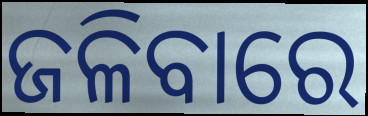
ଜଳିବାରେ